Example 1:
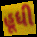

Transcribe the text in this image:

હૂધી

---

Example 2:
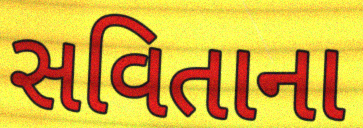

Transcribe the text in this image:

સવિતાના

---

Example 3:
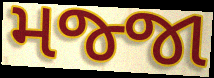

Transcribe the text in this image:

મજ્જા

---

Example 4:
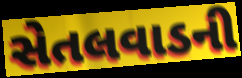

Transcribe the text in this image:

સેતલવાડની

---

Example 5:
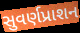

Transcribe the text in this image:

સુવર્ણપ્રાશન